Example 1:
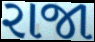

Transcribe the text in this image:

રાજા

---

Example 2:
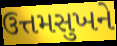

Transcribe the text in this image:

ઉત્તમસુખને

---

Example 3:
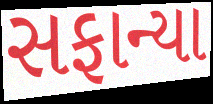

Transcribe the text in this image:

સફાન્યા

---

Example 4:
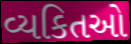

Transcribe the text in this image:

વ્યકિતઓ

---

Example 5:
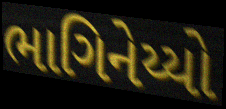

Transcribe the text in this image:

ભાગિનેય્યો